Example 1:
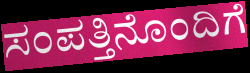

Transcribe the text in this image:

ಸಂಪತ್ತಿನೊಂದಿಗೆ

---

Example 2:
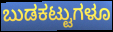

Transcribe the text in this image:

ಬುಡಕಟ್ಟುಗಳೂ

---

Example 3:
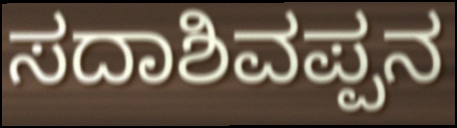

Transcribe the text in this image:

ಸದಾಶಿವಪ್ಪನ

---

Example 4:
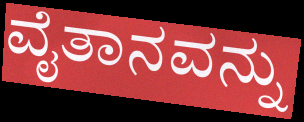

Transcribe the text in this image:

ವೈತಾನವನ್ನು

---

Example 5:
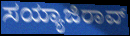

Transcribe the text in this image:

ಸಯ್ಯಾಜಿರಾವ್